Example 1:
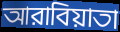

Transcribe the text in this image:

আরাবিয়াতা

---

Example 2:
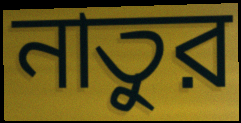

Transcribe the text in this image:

নাতুর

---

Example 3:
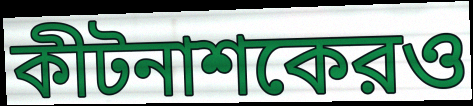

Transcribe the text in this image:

কীটনাশকেরও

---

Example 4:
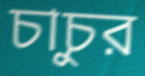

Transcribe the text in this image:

চাচুর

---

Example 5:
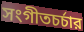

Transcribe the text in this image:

সংগীতচর্চার